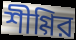
শীগ্গির